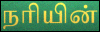
நரியின்